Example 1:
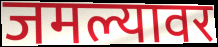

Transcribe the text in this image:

जमल्यावर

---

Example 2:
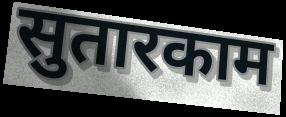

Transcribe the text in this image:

सुतारकाम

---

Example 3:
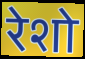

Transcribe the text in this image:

रेशो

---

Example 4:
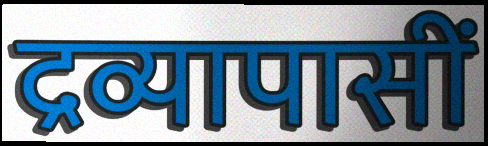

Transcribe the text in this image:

द्रव्यापासीं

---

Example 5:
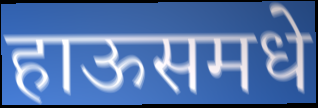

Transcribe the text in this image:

हाऊसमधे